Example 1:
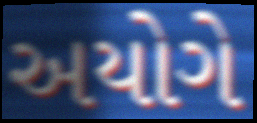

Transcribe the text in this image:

અયોગે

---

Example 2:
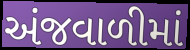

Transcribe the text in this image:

અંજવાળીમાં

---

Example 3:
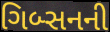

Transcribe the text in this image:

ગિબ્સનની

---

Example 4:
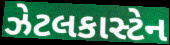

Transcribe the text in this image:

ઝેટલકાસ્ટેન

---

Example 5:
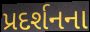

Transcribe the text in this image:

પ્રદર્શનના